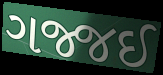
ગજ્જઈ